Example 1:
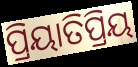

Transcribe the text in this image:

ପ୍ରିୟାତିପ୍ରିୟ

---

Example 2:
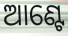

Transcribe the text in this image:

ଆଣ୍ଟେ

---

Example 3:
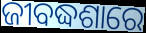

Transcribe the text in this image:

ଜୀବଦ୍ଧଶାରେ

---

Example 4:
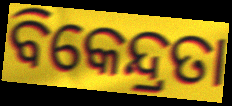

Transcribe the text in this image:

ବିକେନ୍ଦ୍ରତା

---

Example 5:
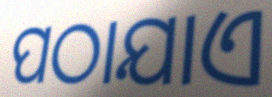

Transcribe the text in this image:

ପଠାଯାଏ